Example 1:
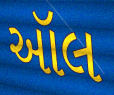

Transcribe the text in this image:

ઑલ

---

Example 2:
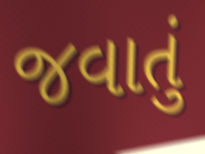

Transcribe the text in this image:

જવાતું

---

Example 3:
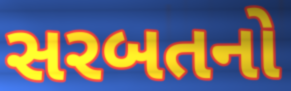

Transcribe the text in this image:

સરબતનો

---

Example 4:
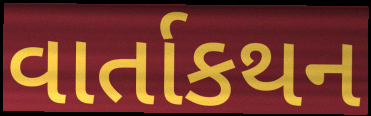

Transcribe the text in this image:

વાર્તાકથન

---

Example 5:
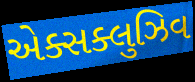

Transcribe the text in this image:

એક્સક્લુઝિવ